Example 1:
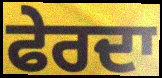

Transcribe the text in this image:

ਫੇਰਦਾ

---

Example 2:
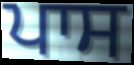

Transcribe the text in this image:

ਪਾਸ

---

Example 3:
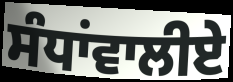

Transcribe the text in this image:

ਸੰਧਾਂਵਾਲੀਏ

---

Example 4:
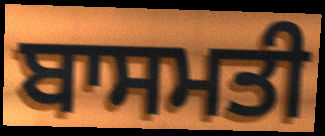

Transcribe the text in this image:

ਬਾਸਮਤੀ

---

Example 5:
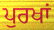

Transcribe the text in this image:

ਪੁਰਖਾਂ